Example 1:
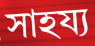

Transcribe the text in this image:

সাহয্য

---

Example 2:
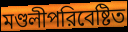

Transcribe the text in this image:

মণ্ডলীপরিবেষ্টিত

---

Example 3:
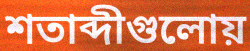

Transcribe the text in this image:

শতাব্দীগুলোয়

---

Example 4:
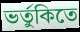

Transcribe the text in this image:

ভর্তুকিতে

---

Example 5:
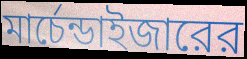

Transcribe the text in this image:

মার্চেন্ডাইজারের